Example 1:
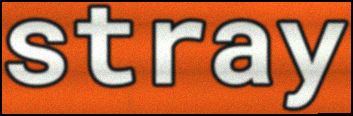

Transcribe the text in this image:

stray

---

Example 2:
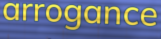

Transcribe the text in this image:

arrogance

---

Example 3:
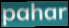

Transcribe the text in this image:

pahar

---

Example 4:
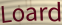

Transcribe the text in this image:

Loard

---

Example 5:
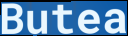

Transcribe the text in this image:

Butea